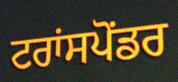
ਟਰਾਂਸਪੋਂਡਰ